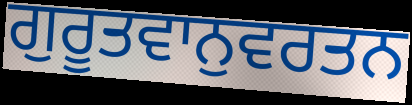
ਗੁਰੂਤਵਾਨੁਵਰਤਨ